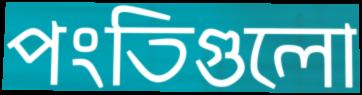
পংতিগুলো